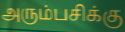
அரும்பசிக்கு